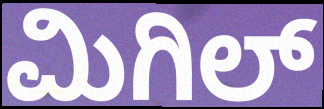
ಮಿಗಿಲ್